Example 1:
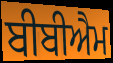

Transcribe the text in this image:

ਬੀਬੀਐਮ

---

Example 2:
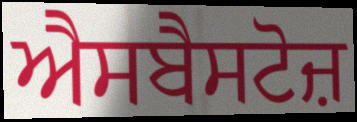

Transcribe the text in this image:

ਐਸਬੈਸਟੋਜ਼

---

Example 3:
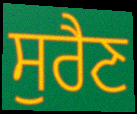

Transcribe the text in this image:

ਸੁਰੈਣ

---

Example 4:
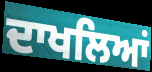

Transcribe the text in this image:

ਦਾਖਲਿਆਂ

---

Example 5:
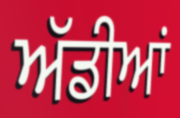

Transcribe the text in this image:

ਅੱਡੀਆਂ